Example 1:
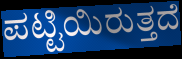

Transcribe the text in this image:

ಪಟ್ಟಿಯಿರುತ್ತದೆ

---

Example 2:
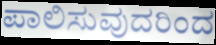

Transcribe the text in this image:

ಪಾಲಿಸುವುದರಿಂದ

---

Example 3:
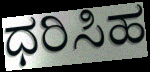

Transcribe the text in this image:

ಧರಿಸಿಹ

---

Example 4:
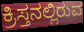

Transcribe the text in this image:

ಕ್ರಿಸ್ತನಲ್ಲಿರುವ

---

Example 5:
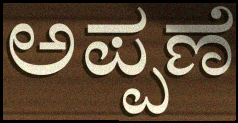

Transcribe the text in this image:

ಅಪ್ಪಣೆ